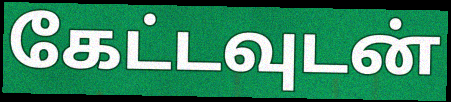
கேட்டவுடன்